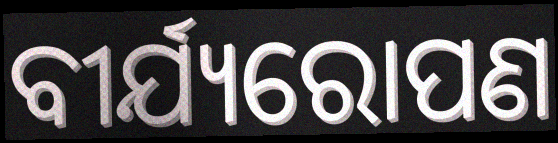
ବୀର୍ଯ୍ୟରୋପଣ